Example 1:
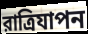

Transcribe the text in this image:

রাত্রিযাপন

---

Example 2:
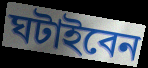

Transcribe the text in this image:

ঘটাইবেন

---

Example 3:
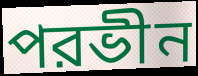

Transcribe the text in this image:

পরভীন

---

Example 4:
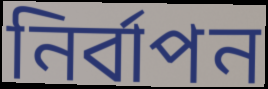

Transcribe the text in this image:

নির্বাপন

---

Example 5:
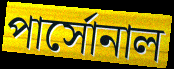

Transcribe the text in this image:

পার্সোনাল